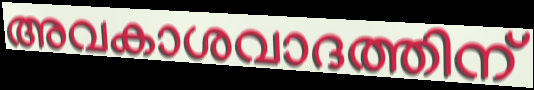
അവകാശവാദത്തിന്